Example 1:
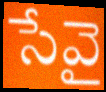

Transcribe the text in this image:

సేవై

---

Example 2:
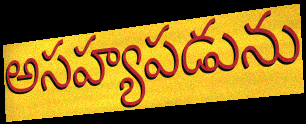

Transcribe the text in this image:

అసహ్యపడును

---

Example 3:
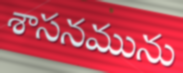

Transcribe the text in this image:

శాసనమును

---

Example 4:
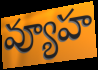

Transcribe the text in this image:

వ్యూహ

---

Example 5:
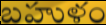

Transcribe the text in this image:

బహుళం